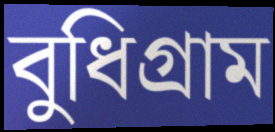
বুধিগ্রাম